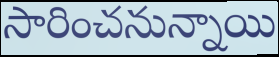
సారించనున్నాయి